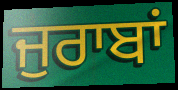
ਜੁਰਾਬਾਂ